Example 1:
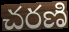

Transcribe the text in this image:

చరణి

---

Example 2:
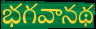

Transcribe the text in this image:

భగవానథ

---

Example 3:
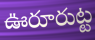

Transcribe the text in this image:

ఊరూరుట్ట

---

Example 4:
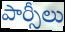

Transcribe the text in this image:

పార్సీలు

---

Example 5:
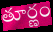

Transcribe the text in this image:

తూర్ణం